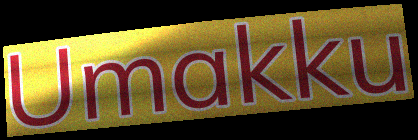
Umakku